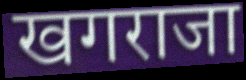
खगराजा